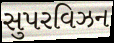
સુપરવિઝન